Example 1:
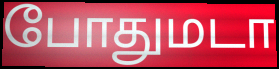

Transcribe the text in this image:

போதுமடா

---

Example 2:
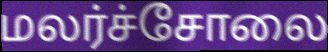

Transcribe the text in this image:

மலர்ச்சோலை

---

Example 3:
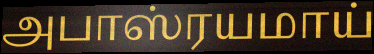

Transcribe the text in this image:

அபாஸ்ரயமாய்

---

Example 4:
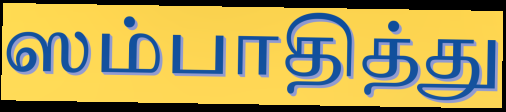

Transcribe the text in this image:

ஸம்பாதித்து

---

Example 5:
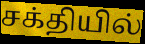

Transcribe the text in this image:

சக்தியில்